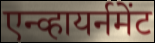
एन्व्हायर्नमेंट